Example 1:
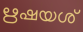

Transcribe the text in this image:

ഋഷയശ്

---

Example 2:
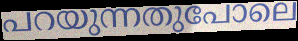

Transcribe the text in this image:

പറയുന്നതുപോലെ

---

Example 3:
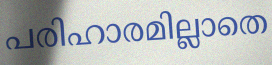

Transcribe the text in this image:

പരിഹാരമില്ലാതെ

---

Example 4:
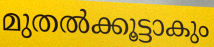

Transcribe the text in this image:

മുതൽക്കൂട്ടാകും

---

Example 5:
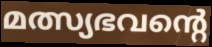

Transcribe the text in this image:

മത്സ്യഭവന്റെ